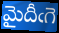
మైదీఁగె